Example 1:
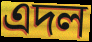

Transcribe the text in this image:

এদল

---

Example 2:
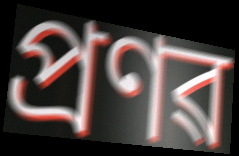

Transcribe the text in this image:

প্ৰণৱ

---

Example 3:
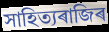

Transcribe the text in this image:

সাহিত্যৰাজিৰ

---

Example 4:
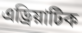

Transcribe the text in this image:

এড্ৰিয়াটিক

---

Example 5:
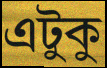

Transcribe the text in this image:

এটুকু